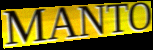
MANTO